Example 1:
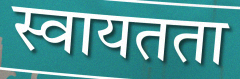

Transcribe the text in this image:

स्वायतता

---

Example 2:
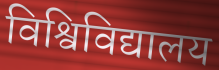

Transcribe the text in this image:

विश्विविद्यालय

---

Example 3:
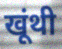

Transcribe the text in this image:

खूंथी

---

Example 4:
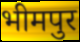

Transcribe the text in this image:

भीमपुर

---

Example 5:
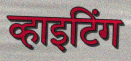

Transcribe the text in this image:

व्हाइटिंग